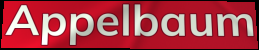
Appelbaum